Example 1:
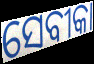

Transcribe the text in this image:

ସେବୀକା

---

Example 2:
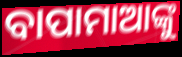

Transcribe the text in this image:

ବାପାମାଆଙ୍କୁ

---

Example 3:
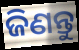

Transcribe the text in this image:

ଜିଣନ୍ତୁ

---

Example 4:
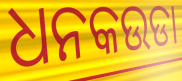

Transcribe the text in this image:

ଧନକଉଡା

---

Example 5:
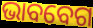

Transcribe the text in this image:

ଭାବବେଗ